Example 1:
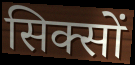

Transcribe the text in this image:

सिक्सों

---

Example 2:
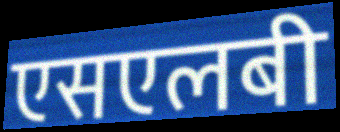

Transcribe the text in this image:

एसएलबी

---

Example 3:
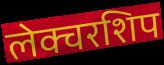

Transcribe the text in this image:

लेक्चरशिप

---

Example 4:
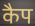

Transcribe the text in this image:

कैप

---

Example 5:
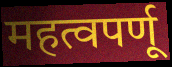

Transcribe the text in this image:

महत्‍वपर्णू